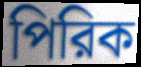
পিরিক